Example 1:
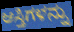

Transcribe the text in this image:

ಆಸ್ತಿಗಳನ್ನು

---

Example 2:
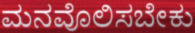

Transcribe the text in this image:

ಮನವೊಲಿಸಬೇಕು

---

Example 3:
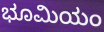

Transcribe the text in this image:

ಭೂಮಿಯಂ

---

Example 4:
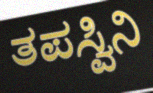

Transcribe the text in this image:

ತಪಸ್ವಿನಿ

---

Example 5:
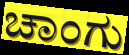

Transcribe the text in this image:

ಚಾಂಗು